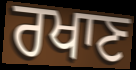
ਰਖਾਣ